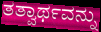
ತತ್ವಾರ್ಥವನ್ನು